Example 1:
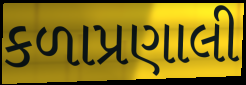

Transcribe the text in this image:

કળાપ્રણાલી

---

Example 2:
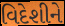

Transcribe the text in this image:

વિદેશીને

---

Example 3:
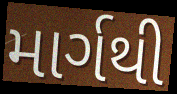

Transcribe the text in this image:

માર્ગથી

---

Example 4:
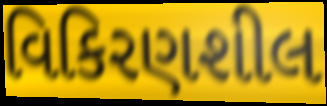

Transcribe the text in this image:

વિકિરણશીલ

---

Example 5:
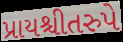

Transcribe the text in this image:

પ્રાયશ્ચીતરુપે